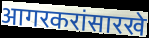
आगरकरांसारखे